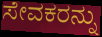
ಸೇವಕರನ್ನು